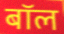
बॉल